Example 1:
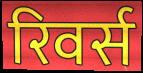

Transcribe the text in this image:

रिवर्स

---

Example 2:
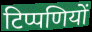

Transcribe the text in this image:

टिप्पणियों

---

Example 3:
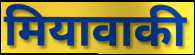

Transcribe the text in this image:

मियावाकी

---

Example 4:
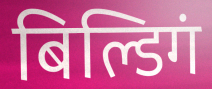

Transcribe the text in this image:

बिल्डिगं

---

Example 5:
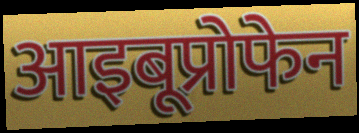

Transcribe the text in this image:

आइबूप्रोफेन